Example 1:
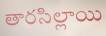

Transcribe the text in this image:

తారసిల్లాయి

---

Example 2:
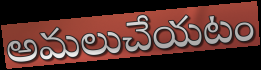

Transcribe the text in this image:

అమలుచేయటం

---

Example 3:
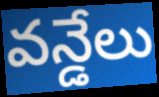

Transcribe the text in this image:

వన్డేలు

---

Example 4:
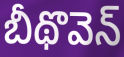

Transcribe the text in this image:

బీథొవెన్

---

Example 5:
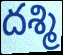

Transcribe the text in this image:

దశ్మి